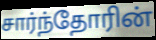
சார்ந்தோரின்